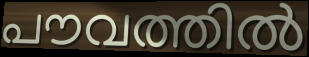
പൗവത്തിൽ